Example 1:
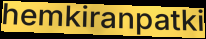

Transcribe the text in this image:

hemkiranpatki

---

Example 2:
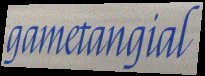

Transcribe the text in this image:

gametangial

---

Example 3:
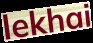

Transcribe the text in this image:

lekhai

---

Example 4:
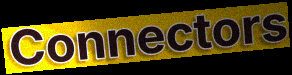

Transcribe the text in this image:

Connectors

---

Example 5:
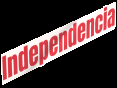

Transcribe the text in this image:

Independencia